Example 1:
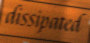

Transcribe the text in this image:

dissipated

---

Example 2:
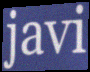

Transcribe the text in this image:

javi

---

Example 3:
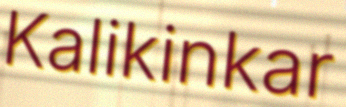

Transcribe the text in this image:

Kalikinkar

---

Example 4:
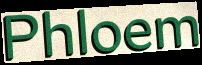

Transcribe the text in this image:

Phloem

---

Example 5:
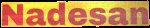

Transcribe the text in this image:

Nadesan